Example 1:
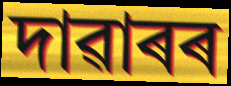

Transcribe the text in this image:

দাৱাৰৰ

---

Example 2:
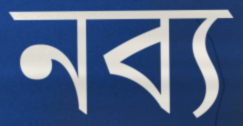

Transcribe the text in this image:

নব্য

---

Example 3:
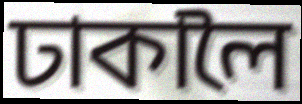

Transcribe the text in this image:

ঢাকালৈ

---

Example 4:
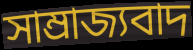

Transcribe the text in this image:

সাম্ৰাজ্যবাদ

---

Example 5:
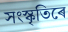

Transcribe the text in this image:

সংস্কৃতিৰে